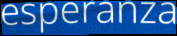
esperanza